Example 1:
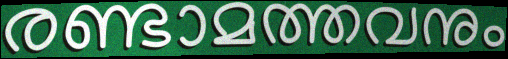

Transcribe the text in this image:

രണ്ടാമത്തവനും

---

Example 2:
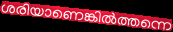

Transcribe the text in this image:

ശരിയാണെങ്കിൽത്തന്നെ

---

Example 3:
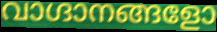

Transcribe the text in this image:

വാഗ്ദാനങ്ങളോ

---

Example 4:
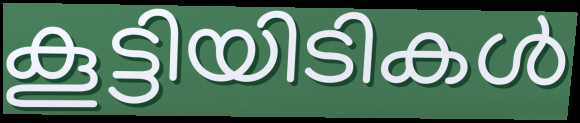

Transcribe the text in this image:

കൂട്ടിയിടികൾ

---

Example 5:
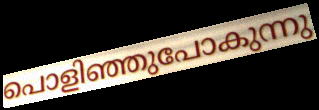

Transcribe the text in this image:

പൊളിഞ്ഞുപോകുന്നു